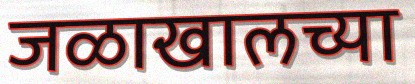
जळाखालच्या